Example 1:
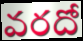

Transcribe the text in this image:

వరదో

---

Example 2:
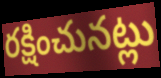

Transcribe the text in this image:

రక్షించునట్లు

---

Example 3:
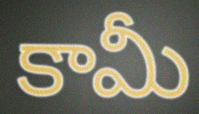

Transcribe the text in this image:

కామీ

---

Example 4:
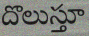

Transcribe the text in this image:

దొలుస్తూ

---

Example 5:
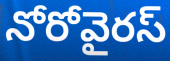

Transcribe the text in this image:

నోరోవైరస్